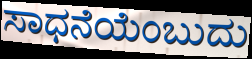
ಸಾಧನೆಯೆಂಬುದು